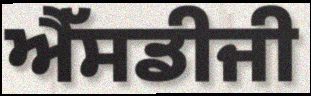
ਐੱਸਡੀਜੀ